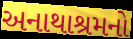
અનાથાશ્રમનો